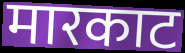
मारकाट